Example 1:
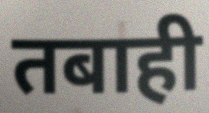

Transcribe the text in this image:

तबाही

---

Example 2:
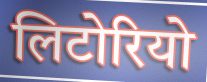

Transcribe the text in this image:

लिटोरियो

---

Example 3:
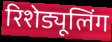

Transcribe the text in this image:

रिशेड्यूलिंग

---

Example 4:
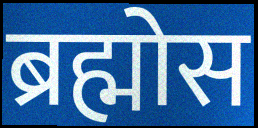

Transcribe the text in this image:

ब्रह्मोस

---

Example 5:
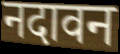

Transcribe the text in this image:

नदावन